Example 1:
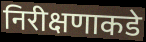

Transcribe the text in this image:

निरीक्षणाकडे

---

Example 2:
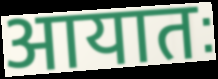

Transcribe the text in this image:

आयातः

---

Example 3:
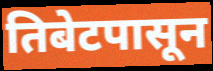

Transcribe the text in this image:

तिबेटपासून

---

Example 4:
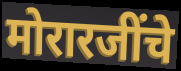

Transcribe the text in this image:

मोरारजींचे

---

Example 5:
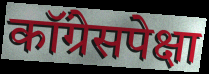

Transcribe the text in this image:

कॉंग्रेसपेक्षा